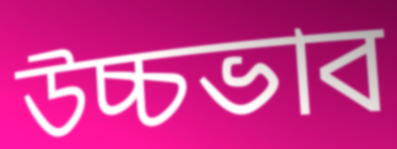
উচ্চভাব